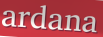
ardana